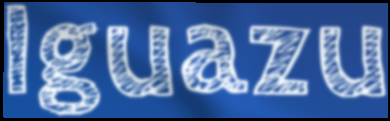
Iguazu